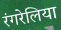
रंगरेलिया